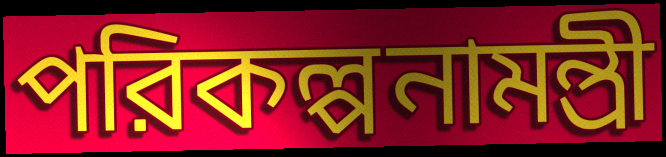
পরিকল্পনামন্ত্রী